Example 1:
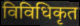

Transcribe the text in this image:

विविधिकृत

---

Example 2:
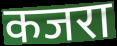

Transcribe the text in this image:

कजरा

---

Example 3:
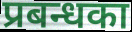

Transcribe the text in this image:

प्रबन्धका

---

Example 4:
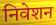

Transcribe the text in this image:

निवेशन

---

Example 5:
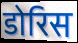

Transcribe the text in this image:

डोरिस